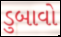
ડુબાવો